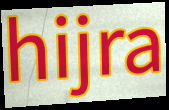
hijra